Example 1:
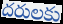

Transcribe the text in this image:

దరులకు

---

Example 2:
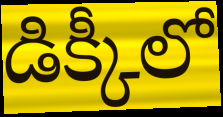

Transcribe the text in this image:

డిక్కీలో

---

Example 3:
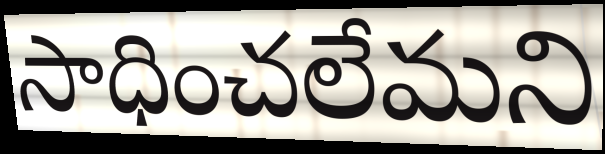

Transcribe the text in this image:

సాధించలేమని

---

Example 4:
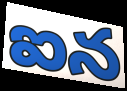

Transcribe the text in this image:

ఐన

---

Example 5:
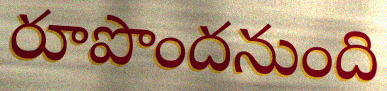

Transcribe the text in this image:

రూపొందనుంది